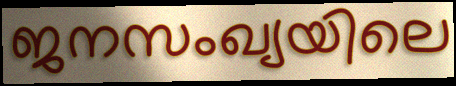
ജനസംഖ്യയിലെ